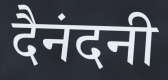
दैनंदनी